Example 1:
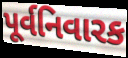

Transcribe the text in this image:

પૂર્વનિવારક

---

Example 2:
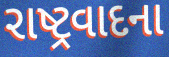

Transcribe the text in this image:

રાષ્ટ્રવાદના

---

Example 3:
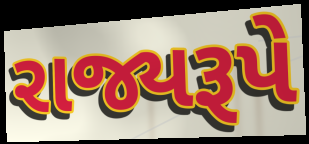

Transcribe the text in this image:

રાજ્યરૂપે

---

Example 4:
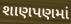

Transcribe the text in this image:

શાણપણમાં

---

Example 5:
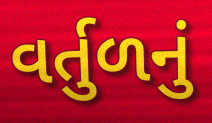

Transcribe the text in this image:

વર્તુળનું